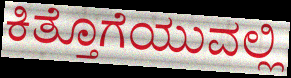
ಕಿತ್ತೊಗೆಯುವಲ್ಲಿ